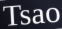
Tsao